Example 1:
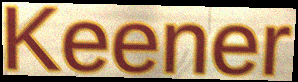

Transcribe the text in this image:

Keener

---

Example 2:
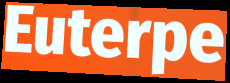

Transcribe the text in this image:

Euterpe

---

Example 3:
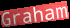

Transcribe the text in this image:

Graham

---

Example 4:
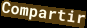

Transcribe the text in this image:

Compartir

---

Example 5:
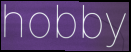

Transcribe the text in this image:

hobby